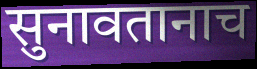
सुनावतानाच